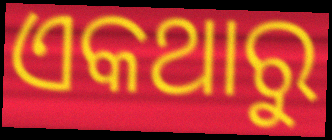
ଏକଥାରୁ